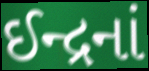
ઈન્દ્રનાં